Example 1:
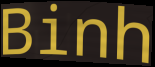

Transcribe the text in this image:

Binh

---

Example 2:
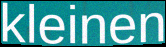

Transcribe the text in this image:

kleinen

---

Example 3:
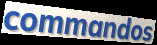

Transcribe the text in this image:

commandos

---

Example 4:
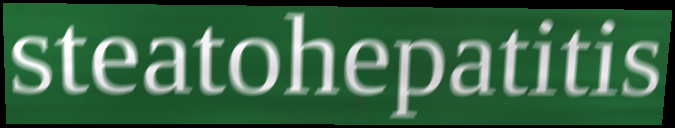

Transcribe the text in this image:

steatohepatitis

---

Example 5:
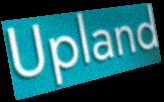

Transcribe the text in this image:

Upland